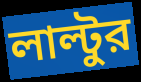
লাল্টুর